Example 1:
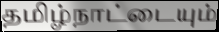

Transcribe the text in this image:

தமிழ்நாட்டையும்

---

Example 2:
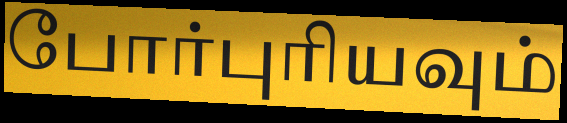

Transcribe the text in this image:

போர்புரியவும்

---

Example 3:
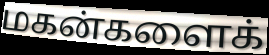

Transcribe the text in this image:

மகன்களைக்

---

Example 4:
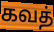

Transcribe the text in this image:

கவத்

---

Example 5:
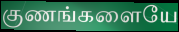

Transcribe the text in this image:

குணங்களையே